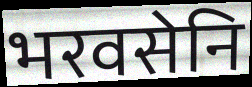
भरवसेनि